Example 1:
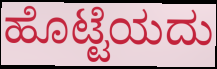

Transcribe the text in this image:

ಹೊಟ್ಟೆಯದು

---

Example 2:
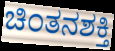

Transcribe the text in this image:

ಚಿಂತನಶಕ್ತಿ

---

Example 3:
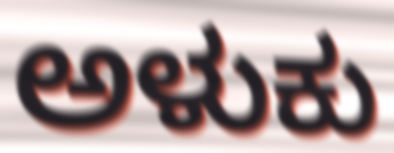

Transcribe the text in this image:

ಅಳುಕು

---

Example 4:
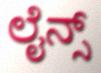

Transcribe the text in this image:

ಲೈನ್ಸ್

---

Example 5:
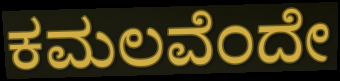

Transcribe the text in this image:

ಕಮಲವೆಂದೇ